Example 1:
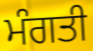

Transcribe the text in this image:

ਮੰਗਤੀ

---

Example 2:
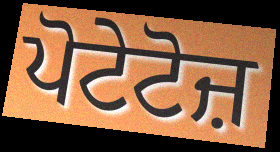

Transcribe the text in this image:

ਪੋਟੇਟੋਜ਼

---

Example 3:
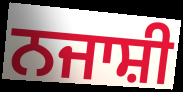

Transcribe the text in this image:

ਨਜਾਸ਼ੀ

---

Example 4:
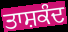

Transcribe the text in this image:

ਤਾਸ਼ਕੰਦ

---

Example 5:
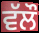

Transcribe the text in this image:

ਵੱਲੌ